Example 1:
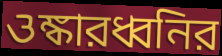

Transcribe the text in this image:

ওঙ্কারধ্বনির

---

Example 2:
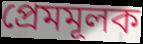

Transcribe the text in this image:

প্রেমমূলক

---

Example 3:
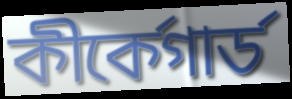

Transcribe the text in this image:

কীর্কেগার্ড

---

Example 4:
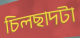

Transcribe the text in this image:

চিলছাদটা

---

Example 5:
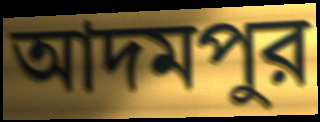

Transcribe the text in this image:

আদমপুর